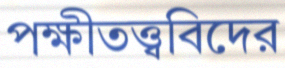
পক্ষীতত্ত্ববিদের